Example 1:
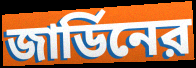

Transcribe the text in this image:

জার্ডিনের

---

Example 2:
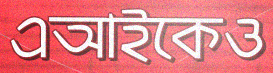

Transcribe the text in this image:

এআইকেও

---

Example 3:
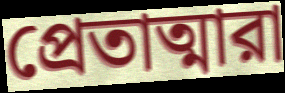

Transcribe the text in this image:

প্রেতাত্মারা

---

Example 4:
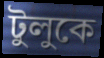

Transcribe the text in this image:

টুলুকে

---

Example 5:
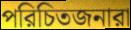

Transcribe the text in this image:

পরিচিতজনারা